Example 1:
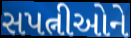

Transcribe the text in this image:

સપત્નીઓને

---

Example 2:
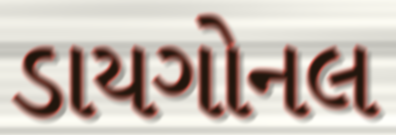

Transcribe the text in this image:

ડાયગોનલ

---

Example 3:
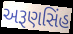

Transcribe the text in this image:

અરૂણસિંહ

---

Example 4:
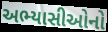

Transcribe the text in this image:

અભ્યાસીઓનો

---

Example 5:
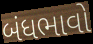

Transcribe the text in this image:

બંધભાવો